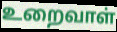
உறைவாள்